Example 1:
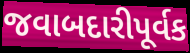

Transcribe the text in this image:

જવાબદારીપૂર્વક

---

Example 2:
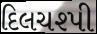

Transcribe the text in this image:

દિલચશ્પી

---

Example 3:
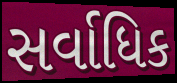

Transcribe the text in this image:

સર્વાધિક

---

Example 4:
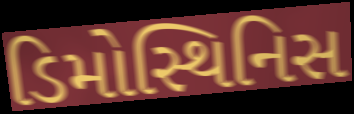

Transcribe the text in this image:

ડિમોસ્થિનિસ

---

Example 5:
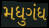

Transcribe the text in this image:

મધુગંધ